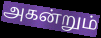
அகன்றும்